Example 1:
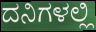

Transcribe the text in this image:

ದನಿಗಳಲ್ಲಿ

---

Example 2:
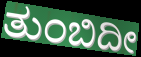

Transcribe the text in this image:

ತುಂಬಿದೀ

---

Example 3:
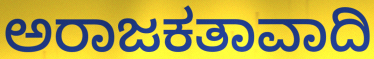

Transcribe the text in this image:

ಅರಾಜಕತಾವಾದಿ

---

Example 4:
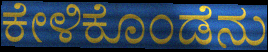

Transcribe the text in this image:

ಕೇಳಿಕೊಂಡೆನು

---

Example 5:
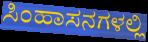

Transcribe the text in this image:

ಸಿಂಹಾಸನಗಳಲ್ಲಿ